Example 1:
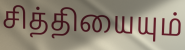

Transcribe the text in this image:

சித்தியையும்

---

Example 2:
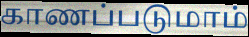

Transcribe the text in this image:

காணப்படுமாம்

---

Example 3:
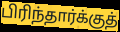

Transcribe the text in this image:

பிரிந்தார்க்குத்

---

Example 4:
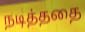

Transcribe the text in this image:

நடித்ததை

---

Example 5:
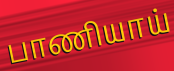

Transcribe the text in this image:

பாணியாய்